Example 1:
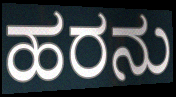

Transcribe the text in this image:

ಹರನು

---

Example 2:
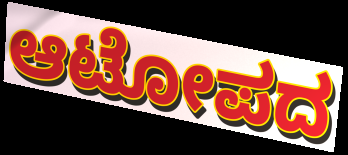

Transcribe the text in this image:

ಆಟೋಪದ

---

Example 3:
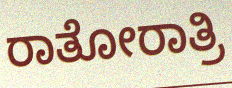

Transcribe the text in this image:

ರಾತೋರಾತ್ರಿ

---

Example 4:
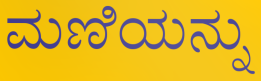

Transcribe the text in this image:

ಮಣಿಯನ್ನು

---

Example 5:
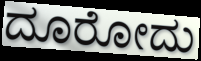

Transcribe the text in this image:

ದೂರೋದು